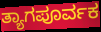
ತ್ಯಾಗಪೂರ್ವಕ